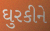
ઘુરકીને